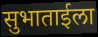
सुभाताईला